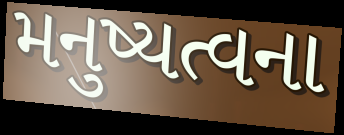
મનુષ્યત્વના